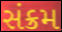
સંક્રમ